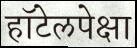
हॉटेलपेक्षा